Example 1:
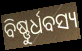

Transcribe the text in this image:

ବିଷ୍ଣୁର୍ଧବସ୍ୟ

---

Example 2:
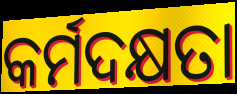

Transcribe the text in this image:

କର୍ମଦକ୍ଷତା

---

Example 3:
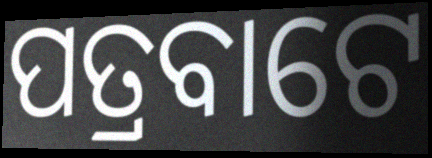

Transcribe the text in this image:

ପତ୍ରବାଟେ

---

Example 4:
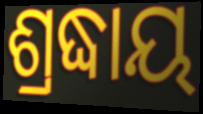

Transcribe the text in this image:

ଶ୍ରଦ୍ଧାୟ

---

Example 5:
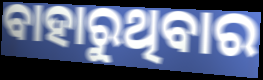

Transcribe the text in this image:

ବାହାରୁଥିବାର